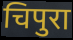
चिपुरा